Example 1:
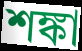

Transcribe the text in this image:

শঙ্কা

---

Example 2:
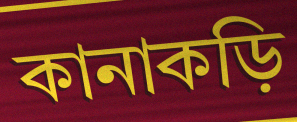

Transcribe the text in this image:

কানাকড়ি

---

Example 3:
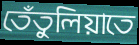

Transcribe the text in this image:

তেঁতুলিয়াতে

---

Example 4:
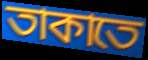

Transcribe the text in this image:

তাকাতে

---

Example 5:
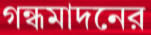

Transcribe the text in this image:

গন্ধমাদনের